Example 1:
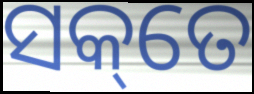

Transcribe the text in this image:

ସକ୍‌ତେ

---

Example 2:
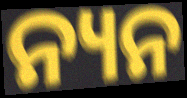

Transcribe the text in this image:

ନ୍ୟନ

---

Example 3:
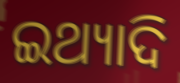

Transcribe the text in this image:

ଇଥ୍ୟାଦି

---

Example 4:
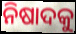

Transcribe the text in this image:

ନିଷାଦକୁ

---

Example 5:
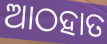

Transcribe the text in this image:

ଆଠହାତ